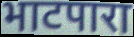
भाटपारा